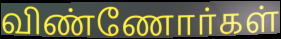
விண்ணோர்கள்